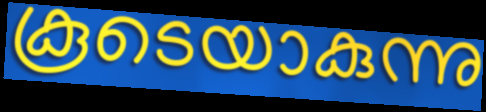
കൂടെയാകുന്നു